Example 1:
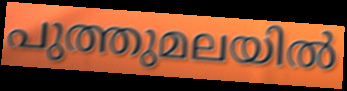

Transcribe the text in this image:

പുത്തുമലയിൽ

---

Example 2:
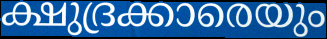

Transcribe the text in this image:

ക്ഷുദ്രക്കാരെയും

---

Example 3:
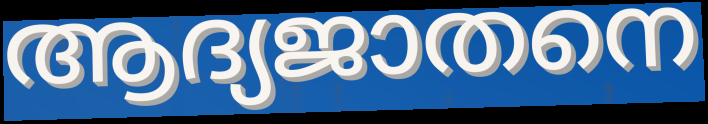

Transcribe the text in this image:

ആദ്യജാതനെ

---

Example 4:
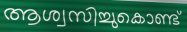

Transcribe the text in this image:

ആശ്വസിച്ചുകൊണ്ട്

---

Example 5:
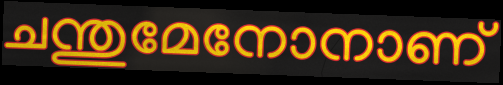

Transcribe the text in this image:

ചന്തുമേനോനാണ്